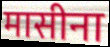
मासीना